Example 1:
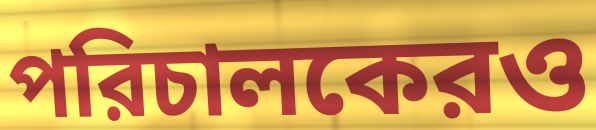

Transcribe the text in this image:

পরিচালকেরও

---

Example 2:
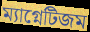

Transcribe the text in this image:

ম্যাগ্নেটিজম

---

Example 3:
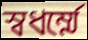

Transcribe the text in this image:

স্বধর্ম্মে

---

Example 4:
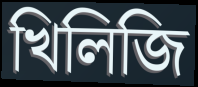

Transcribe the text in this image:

খিলিজি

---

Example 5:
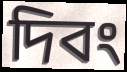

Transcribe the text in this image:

দিবং